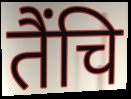
तैंचि